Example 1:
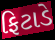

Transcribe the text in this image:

ફિટાડે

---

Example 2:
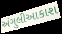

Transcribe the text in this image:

અંગુલીઆકાશ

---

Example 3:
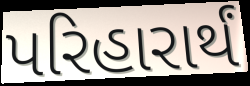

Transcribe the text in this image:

પરિહારાર્થં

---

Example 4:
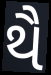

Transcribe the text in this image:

થૈ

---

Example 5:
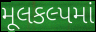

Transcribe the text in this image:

મૂલકલ્પમાં